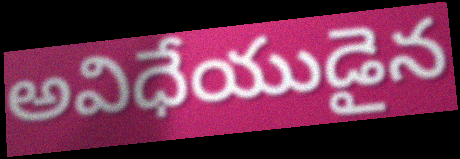
అవిధేయుడైన